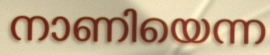
നാണിയെന്ന